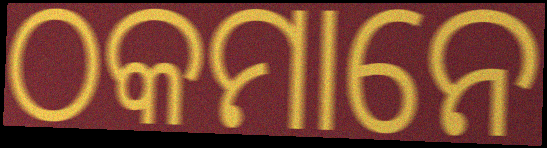
ଠକମାନେ